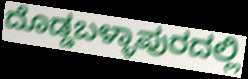
ದೊಡ್ಡಬಳ್ಳಾಪುರದಲ್ಲಿ